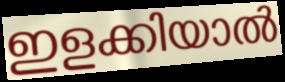
ഇളക്കിയാൽ